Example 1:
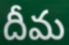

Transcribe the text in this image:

దీమ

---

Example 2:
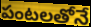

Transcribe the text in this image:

పంటలతోనే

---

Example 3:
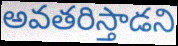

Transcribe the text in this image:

అవతరిస్తాడని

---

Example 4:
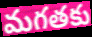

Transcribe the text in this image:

మగతకు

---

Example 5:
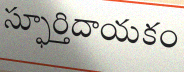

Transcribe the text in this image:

స్ఫూర్తిదాయకం